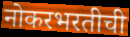
नोकरभरतीची